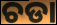
ଚଡା